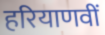
हरियाणवीं